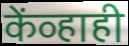
केंव्हाही